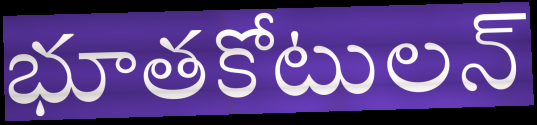
భూతకోటులన్